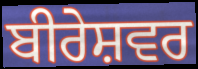
ਬੀਰੇਸ਼ਵਰ